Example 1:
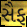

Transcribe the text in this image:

સૈફ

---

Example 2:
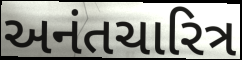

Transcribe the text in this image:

અનંતચારિત્ર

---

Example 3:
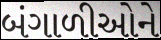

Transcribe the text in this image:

બંગાળીઓને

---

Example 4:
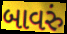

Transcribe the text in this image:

બાવરું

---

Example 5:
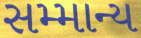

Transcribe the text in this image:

સમ્માન્ય